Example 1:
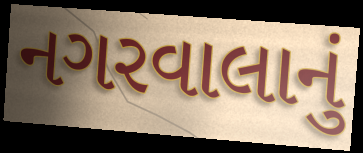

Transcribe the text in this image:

નગરવાલાનું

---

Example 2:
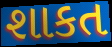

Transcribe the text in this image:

શાકત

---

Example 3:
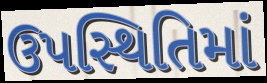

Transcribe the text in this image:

ઉપસ્થિતિમાં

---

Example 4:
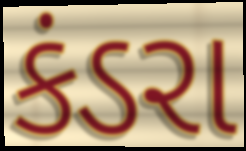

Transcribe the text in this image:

કંડરા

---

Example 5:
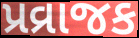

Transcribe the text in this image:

પ્રવ્રાજક